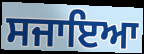
ਸਜਾਇਆ